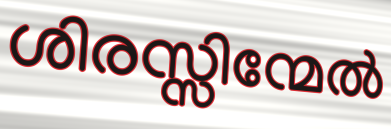
ശിരസ്സിന്മേൽ